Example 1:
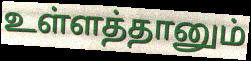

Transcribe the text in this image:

உள்ளத்தானும்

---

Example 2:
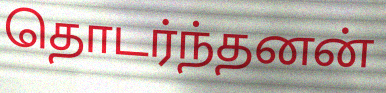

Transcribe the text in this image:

தொடர்ந்தனன்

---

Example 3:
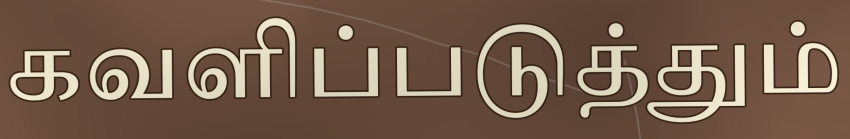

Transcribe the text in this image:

கவளிப்படுத்தும்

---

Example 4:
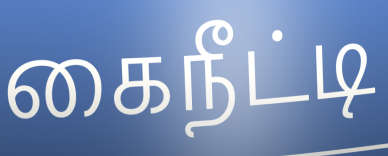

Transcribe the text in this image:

கைநீட்டி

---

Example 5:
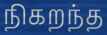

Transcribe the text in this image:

நிகறந்த